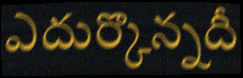
ఎదుర్కొన్నదీ